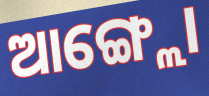
ଆଙ୍ଗ୍ଲୋ